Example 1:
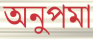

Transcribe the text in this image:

অনুপমা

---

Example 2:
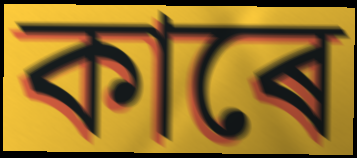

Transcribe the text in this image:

কাৰে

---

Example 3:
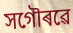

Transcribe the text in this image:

সগৌৰৱে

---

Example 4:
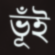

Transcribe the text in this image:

ভূঁই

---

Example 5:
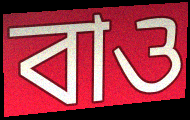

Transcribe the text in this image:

বাও